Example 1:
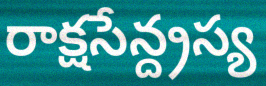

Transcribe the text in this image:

రాక్షసేన్ద్రస్య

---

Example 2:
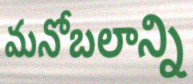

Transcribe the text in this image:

మనోబలాన్ని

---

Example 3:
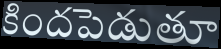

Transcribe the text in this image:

కిందపెడుతూ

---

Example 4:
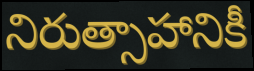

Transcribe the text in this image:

నిరుత్సాహానికీ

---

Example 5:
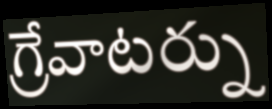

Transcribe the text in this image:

గ్రేవాటర్ను